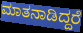
ಮಾತನಾಡಿದ್ದರೆ